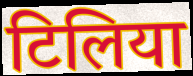
टिलिया